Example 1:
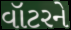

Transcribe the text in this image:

વૉટરને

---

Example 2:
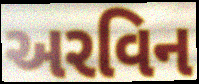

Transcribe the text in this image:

અરવિન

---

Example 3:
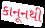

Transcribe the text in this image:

કાનૂનથી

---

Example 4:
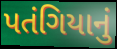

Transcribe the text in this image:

પતંગિયાનું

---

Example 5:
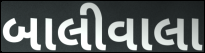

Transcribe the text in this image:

બાલીવાલા